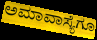
ಅಮಾವಾಸ್ಯೆಗೂ